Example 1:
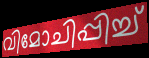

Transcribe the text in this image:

വിമോചിപ്പിച്ച്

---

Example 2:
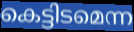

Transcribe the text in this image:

കെട്ടിടമെന്ന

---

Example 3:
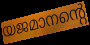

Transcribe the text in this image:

യജമാനന്റെ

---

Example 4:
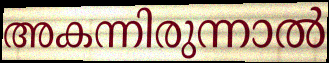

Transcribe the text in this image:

അകന്നിരുന്നാൽ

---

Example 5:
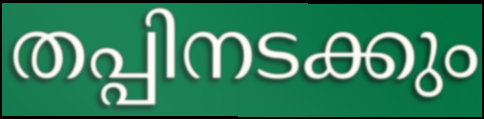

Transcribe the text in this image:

തപ്പിനടക്കും